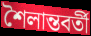
শৈলান্তবর্তী